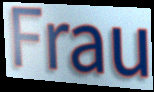
Frau